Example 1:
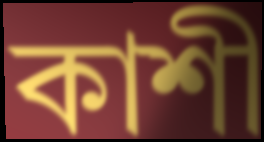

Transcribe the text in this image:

কাশী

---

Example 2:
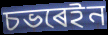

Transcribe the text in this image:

চভৰেইন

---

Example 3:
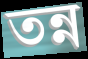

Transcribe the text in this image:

তন্ন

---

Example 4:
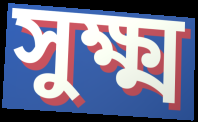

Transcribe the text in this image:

সুক্ষ্ম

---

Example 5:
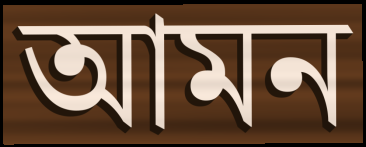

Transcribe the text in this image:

আমন